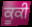
ਕੂਕੀ